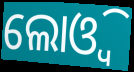
ଲୋଓ୍ବି